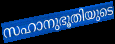
സഹാനുഭൂതിയുടെ